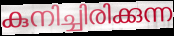
കുനിച്ചിരിക്കുന്ന